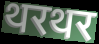
थरथर